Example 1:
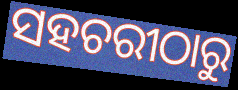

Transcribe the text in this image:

ସହଚରୀଠାରୁ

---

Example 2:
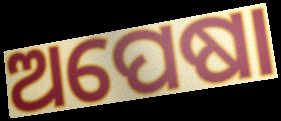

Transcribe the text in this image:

ଅପେଷା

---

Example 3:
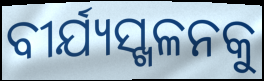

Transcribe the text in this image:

ବୀର୍ଯ୍ୟସ୍ଖଳନକୁ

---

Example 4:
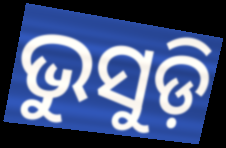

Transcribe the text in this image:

ଭୁସୁଡ଼ି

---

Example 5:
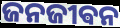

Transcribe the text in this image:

ଜନଜୀଵନ